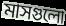
মাসগুলো